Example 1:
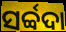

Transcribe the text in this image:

ସର୍ବ୍ବଦା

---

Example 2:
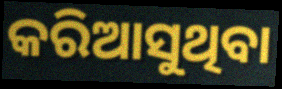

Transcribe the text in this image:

କରିଆସୁଥିବା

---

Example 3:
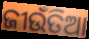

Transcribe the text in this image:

ଜୀଉଁତିଆ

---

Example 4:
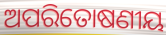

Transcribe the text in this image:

ଅପରିତୋଷଣୀୟ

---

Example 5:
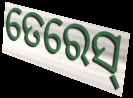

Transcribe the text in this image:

ତେରେସ୍